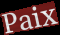
Paix